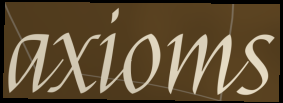
axioms